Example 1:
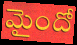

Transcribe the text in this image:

మైందో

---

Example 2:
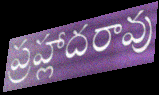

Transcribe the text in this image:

ప్రహ్లాదరావు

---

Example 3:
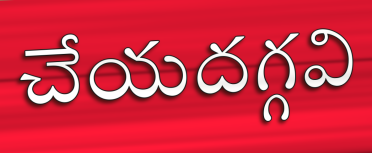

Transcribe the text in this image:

చేయదగ్గవి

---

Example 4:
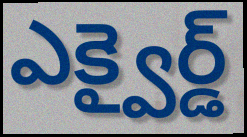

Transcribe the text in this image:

ఎక్వైర్డ్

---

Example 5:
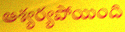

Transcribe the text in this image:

ఆశ్యర్యపోయింది